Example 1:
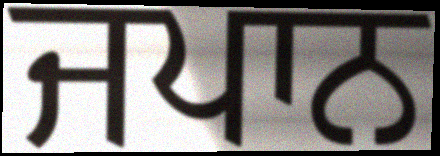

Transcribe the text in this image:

ਜਪਾਨ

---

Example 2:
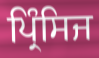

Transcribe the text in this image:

ਪ੍ਰਿੰਸਿਜ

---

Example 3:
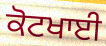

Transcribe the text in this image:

ਕੋਟਖਾਈ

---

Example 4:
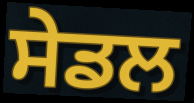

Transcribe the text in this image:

ਸੇਡਲ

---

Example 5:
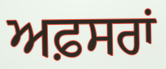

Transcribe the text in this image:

ਅਫ਼ਸਰਾਂ